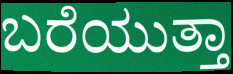
ಬರೆಯುತ್ತಾ